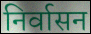
निर्वासन